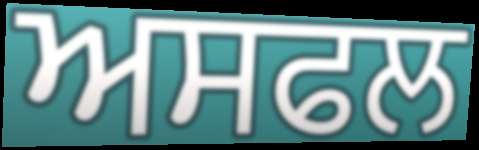
ਅਸਫਲ